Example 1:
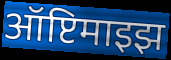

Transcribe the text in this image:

ऑप्टिमाइझ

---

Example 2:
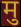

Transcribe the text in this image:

मु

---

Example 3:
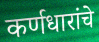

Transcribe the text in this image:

कर्णधारांचे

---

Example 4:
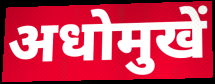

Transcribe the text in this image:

अधोमुखें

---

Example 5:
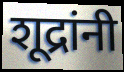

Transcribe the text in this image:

शूद्रांनी